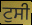
ਟੁਸੀ